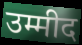
उम्मीद